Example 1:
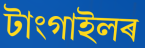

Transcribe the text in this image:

টাংগাইলৰ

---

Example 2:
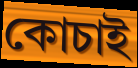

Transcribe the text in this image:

কোচাই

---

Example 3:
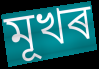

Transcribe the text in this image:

মূখৰ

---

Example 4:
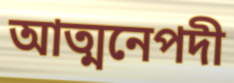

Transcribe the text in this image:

আত্মনেপদী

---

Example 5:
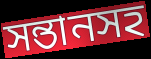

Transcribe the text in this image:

সন্তানসহ